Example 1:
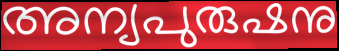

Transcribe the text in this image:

അന്യപുരുഷനു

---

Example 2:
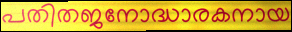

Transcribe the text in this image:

പതിതജനോദ്ധാരകനായ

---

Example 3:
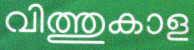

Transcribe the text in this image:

വിത്തുകാള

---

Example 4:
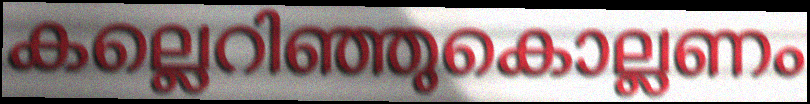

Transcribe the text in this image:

കല്ലെറിഞ്ഞുകൊല്ലണം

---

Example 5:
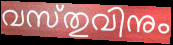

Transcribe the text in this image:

വസ്‌തുവിനും